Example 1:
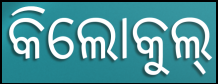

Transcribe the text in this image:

କିଲୋକୁଲ୍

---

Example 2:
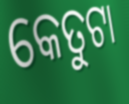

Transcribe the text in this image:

କେତୁଟା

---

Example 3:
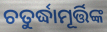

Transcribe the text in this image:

ଚତୁର୍ଦ୍ଧାମୂର୍ତ୍ତିଙ୍କ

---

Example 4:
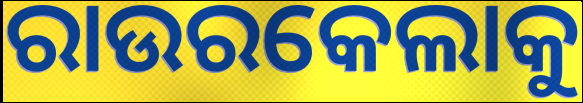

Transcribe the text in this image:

ରାଉରକେଲାକୁ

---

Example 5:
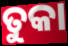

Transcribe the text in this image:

ତୁକା